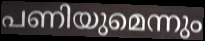
പണിയുമെന്നും